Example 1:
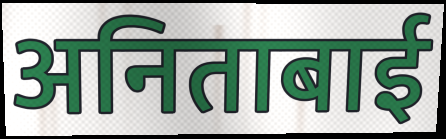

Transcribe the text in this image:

अनिताबाई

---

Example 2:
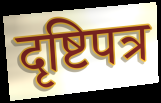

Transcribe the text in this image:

दृष्टिपत्र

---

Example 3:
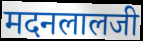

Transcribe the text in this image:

मदनलालजी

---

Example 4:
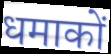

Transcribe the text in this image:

धमाकों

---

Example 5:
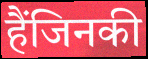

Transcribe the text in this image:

हैंजिनकी